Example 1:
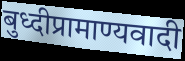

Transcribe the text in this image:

बुध्दीप्रामाण्यवादी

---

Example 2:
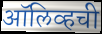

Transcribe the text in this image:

ऑलिव्हची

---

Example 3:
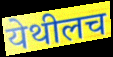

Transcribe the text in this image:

येथीलच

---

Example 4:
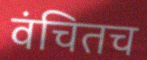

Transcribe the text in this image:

वंचितच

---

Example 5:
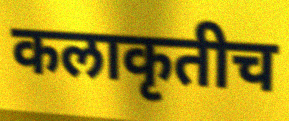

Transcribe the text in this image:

कलाकृतीच